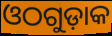
ଓଠଗୁଡ଼ାକ